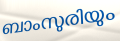
ബാംസുരിയും